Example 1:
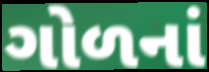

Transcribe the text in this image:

ગોળનાં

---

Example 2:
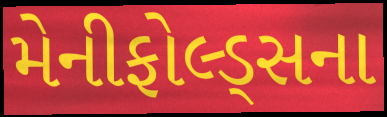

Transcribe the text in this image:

મેનીફોલ્ડ્સના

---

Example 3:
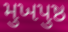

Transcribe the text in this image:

મુખપુષ્ઠ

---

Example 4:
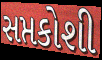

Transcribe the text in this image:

સપ્તકોશી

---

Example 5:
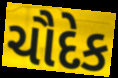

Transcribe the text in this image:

ચૌદેક